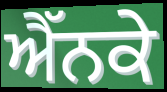
ਐੱਨਕੇ